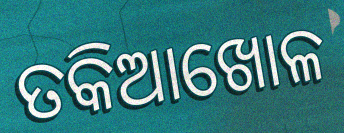
ତକିଆଖୋଳ